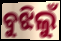
ବୁଝିଲୁଁ